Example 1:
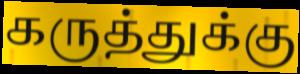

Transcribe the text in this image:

கருத்துக்கு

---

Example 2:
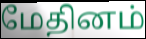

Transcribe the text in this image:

மேதினம்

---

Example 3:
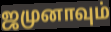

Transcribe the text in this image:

ஜமுனாவும்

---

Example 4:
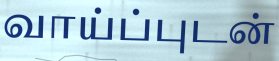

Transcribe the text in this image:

வாய்ப்புடன்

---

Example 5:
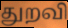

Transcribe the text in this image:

துறவி